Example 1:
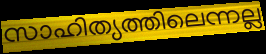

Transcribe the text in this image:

സാഹിത്യത്തിലെന്നല്ല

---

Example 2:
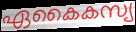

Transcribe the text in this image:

ഏകൈകസ്യ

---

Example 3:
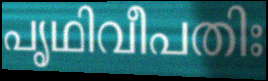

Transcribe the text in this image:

പൃഥിവീപതിഃ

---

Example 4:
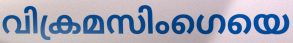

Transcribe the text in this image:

വിക്രമസിംഗെയെ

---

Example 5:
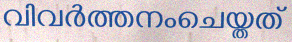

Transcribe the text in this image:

വിവർത്തനംചെയ്തത്